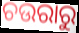
ଚଉରାରୁ